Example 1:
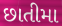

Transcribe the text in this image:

છાતીમા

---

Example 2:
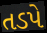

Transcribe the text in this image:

તડપે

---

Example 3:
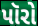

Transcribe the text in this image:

પૉરો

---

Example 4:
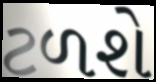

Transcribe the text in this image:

ટળશે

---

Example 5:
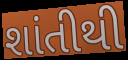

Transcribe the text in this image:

શાંતીથી